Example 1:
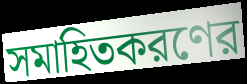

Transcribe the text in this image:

সমাহিতকরণের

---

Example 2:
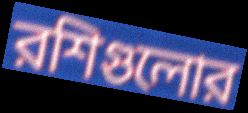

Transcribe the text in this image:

রশিগুলোর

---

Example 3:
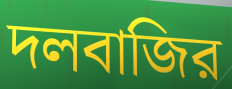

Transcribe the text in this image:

দলবাজির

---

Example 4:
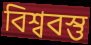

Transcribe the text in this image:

বিশ্ববস্তু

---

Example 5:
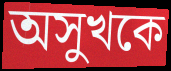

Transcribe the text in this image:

অসুখকে